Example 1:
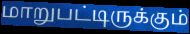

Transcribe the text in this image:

மாறுபட்டிருக்கும்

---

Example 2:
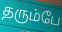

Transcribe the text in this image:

தரும்பே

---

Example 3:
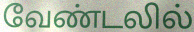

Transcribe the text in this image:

வேண்டலில்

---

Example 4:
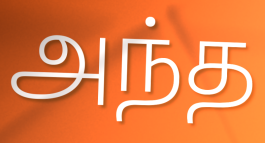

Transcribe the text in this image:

அந்த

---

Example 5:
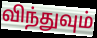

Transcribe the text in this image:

விந்துவும்